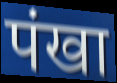
पंखा